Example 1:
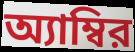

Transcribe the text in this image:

অ্যাম্বির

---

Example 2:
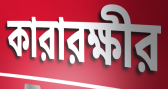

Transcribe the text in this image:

কারারক্ষীর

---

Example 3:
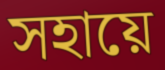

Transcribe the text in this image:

সহায়ে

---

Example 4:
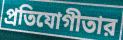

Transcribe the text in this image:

প্রতিযোগীতার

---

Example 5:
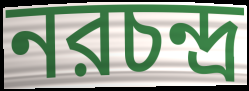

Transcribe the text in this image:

নরচন্দ্র